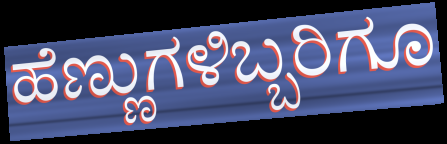
ಹೆಣ್ಣುಗಳಿಬ್ಬರಿಗೂ